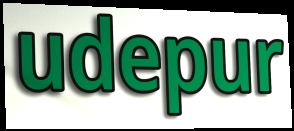
udepur